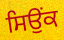
ਸਿਉਂਕ